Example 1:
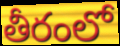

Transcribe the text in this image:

తీరంలో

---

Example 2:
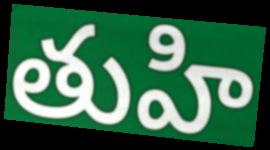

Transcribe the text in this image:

తుహి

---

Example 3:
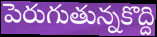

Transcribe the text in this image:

పెరుగుతున్నకొద్ది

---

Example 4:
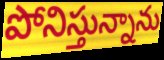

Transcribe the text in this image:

పోనిస్తున్నాను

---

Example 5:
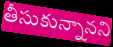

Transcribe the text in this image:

తీసుకున్నానని